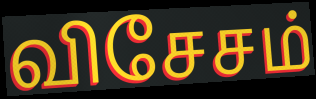
விசேசம்